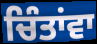
ਚਿੰਤਾਂਵਾ